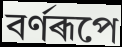
বৰ্ণৰূপে